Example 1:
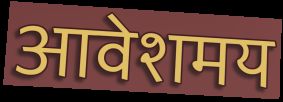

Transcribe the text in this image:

आवेशमय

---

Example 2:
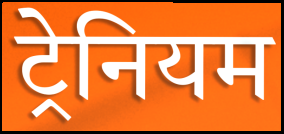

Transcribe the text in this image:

ट्रेनियम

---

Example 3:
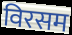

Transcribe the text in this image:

विरसम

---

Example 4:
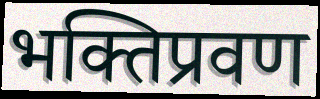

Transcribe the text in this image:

भक्तिप्रवण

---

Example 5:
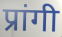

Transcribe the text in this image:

प्रांगी